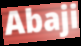
Abaji